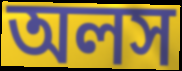
অলস